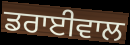
ਡਰਾਈਵਾਲ